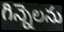
గిన్నెలను